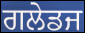
ਗਲੇਡਜ